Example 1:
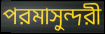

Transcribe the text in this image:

পরমাসুন্দরী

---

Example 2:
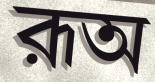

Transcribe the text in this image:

রূঅ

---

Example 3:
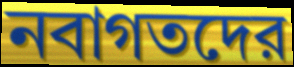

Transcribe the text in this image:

নবাগতদের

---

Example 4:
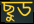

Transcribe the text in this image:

ছুড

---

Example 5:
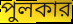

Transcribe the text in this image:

পুলকার